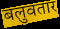
बलुवतार